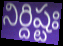
నిర్దిష్టః